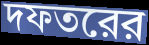
দফতরের